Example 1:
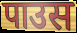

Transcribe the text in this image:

पाउस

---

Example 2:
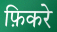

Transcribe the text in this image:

फ़िकरे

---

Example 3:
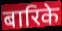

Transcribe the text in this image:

बारिके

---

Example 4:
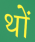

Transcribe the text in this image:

थों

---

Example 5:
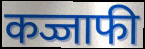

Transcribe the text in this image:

कज्जाफी